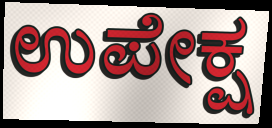
ಉಪೇಕ್ಷ